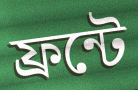
ফ্রন্টে